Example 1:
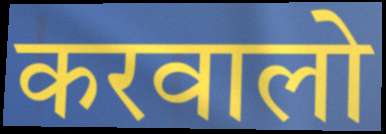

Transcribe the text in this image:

करवालो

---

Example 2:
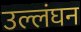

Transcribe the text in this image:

उल्लंघन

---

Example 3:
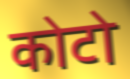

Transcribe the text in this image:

कोटो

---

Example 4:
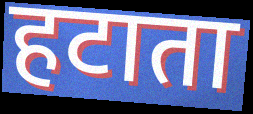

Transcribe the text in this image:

हटाता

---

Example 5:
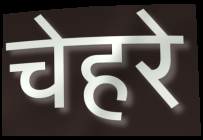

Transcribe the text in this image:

चेहरे